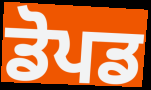
ਡੋਪਡ